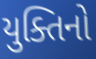
યુક્તિનો